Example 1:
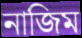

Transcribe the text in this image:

নাজিম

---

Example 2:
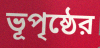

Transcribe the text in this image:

ভূপৃষ্ঠের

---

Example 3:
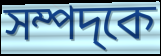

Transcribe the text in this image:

সম্পদ্‌কে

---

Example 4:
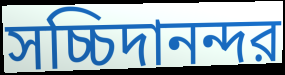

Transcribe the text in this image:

সচ্চিদানন্দর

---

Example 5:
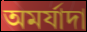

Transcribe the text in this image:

অমর্যাদা